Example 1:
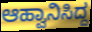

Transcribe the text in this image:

ಆಹ್ವಾನಿಸಿದ್ದ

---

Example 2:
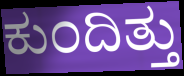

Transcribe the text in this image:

ಕುಂದಿತ್ತು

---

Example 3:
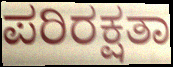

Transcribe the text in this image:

ಪರಿರಕ್ಷತಾ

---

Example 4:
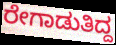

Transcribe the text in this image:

ರೇಗಾಡುತಿದ್ದ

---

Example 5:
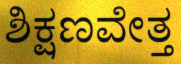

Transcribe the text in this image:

ಶಿಕ್ಷಣವೇತ್ತ